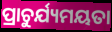
ପ୍ରାଚୁର୍ଯ୍ୟମୟତା